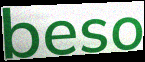
beso